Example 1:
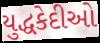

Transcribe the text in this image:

યુદ્ધકેદીઓ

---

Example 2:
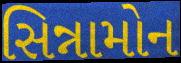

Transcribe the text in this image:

સિન્નામોન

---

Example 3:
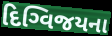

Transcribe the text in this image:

દિગ્વિજયના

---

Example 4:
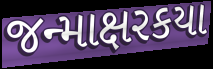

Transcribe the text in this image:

જન્માક્ષરકયા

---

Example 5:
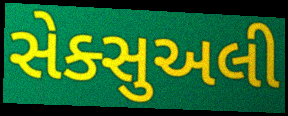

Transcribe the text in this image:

સેક્સુઅલી